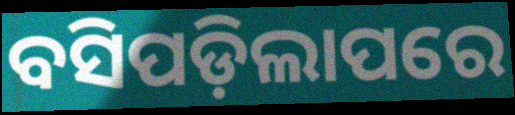
ବସିପଡ଼ିଲାପରେ